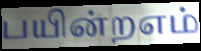
பயின்றஎம்